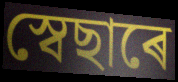
স্বেছাৰে